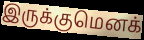
இருக்குமெனக்